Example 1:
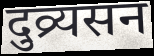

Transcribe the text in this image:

दुव्र्यसन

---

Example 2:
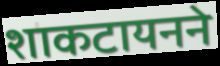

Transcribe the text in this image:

शाकटायनने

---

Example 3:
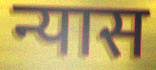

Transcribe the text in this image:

न्‍यास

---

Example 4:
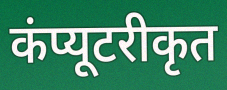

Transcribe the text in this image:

कंप्यूटरीकृत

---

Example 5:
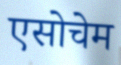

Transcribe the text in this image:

एसोचेम